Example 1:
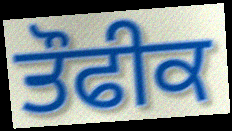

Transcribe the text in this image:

ਤੌਫੀਕ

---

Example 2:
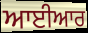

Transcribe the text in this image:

ਆਈਆਰ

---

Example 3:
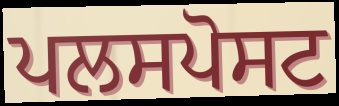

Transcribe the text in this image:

ਪਲਸਪੋਸਟ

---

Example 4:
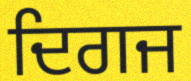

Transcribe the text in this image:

ਦਿਗਜ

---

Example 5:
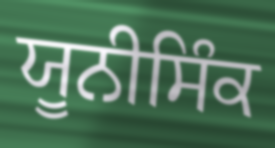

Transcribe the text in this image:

ਯੂਨੀਸਿੰਕ